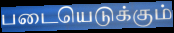
படையெடுக்கும்